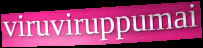
viruviruppumai